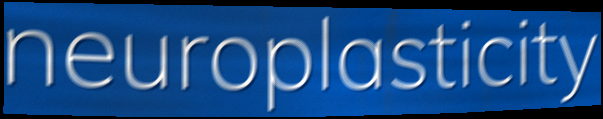
neuroplasticity